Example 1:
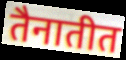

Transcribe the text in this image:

तैनातीत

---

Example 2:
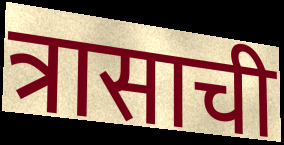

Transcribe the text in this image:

त्रासाची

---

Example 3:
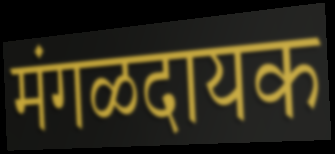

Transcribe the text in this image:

मंगळदायक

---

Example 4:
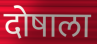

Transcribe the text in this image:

दोषाला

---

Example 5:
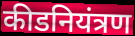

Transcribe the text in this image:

कीडनियंत्रण